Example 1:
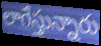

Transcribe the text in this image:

లాగేస్తున్నారు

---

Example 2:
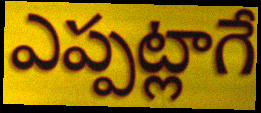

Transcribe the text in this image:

ఎప్పట్లాగే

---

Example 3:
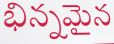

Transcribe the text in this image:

భిన్నమైన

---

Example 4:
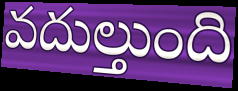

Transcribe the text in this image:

వదుల్తుంది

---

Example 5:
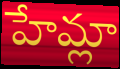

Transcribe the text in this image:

హేమ్లా